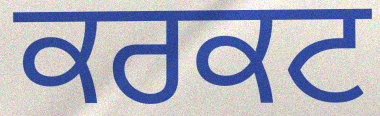
ਕਰਕਟ